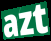
azt